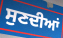
ਸੁਣਦੀਆਂ